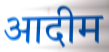
आदीम